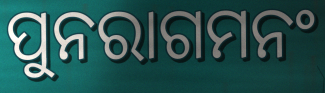
ପୁନରାଗମନଂ